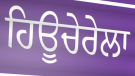
ਹਿਊਚੇਰੇਲਾ